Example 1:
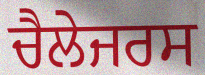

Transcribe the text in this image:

ਚੈਲੇਜਰਸ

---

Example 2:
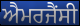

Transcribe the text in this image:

ਐਮਰਜੈਂਸੀ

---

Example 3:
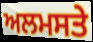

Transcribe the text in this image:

ਅਲਮਸਤੇ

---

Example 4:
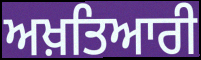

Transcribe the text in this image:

ਅਖ਼ਤਿਆਰੀ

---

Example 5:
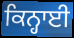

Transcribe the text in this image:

ਕਿਨ੍ਹਾਈ